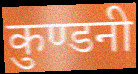
कुण्डनी